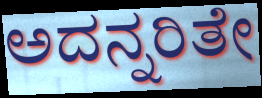
ಅದನ್ನರಿತೇ